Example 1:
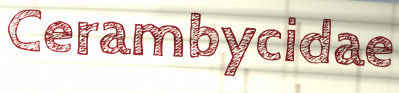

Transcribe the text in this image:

Cerambycidae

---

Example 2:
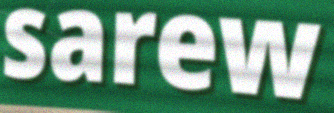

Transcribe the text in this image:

sarew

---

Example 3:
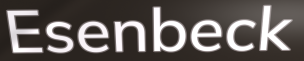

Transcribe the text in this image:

Esenbeck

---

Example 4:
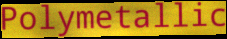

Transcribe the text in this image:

Polymetallic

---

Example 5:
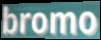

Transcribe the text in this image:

bromo